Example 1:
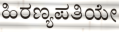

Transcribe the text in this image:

ಹಿರಣ್ಯಪತಿಯೇ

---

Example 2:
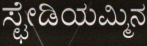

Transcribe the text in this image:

ಸ್ಟೇಡಿಯಮ್ಮಿನ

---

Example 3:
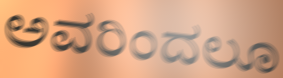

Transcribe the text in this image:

ಅವರಿಂದಲೂ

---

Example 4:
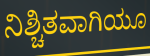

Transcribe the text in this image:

ನಿಶ್ಚಿತವಾಗಿಯೂ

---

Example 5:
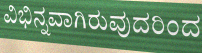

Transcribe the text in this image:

ವಿಭಿನ್ನವಾಗಿರುವುದರಿಂದ